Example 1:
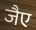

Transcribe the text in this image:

जैए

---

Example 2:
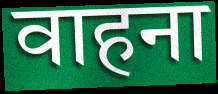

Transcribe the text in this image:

वाहना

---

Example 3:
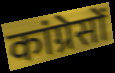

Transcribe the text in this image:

कांग्रेसों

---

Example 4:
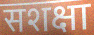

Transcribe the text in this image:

सशक्षा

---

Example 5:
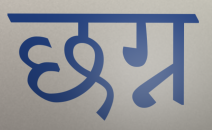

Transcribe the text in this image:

छग्न